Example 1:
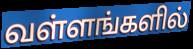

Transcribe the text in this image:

வள்ளங்களில்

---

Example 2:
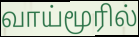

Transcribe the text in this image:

வாய்மூரில்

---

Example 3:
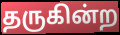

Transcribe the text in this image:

தருகின்ற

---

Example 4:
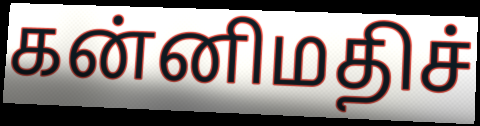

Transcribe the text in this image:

கன்னிமதிச்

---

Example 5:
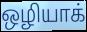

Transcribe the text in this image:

ஒழியாக்